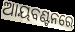
ଆୟବଣ୍ଟନରେ